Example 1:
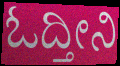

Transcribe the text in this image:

ಓದ್ತೀನಿ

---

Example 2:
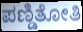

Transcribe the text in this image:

ಪಣ್ಡಿತೋತಿ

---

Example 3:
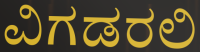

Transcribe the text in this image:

ವಿಗಡರಲಿ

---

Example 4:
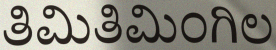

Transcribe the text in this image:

ತಿಮಿತಿಮಿಂಗಿಲ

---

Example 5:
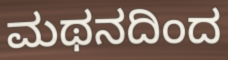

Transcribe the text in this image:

ಮಥನದಿಂದ